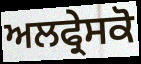
ਅਲਫ੍ਰੇਸਕੋ